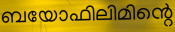
ബയോഫിലിമിന്റെ